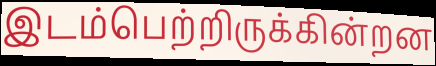
இடம்பெற்றிருக்கின்றன